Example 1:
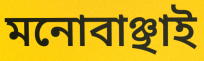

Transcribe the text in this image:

মনোবাঞ্ছাই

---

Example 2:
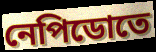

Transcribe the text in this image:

নেপিডোতে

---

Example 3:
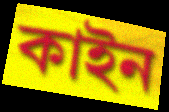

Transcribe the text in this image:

কাইন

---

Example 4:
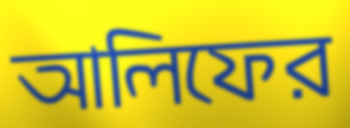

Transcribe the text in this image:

আলিফের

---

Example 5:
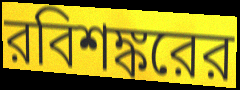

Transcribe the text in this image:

রবিশঙ্করের